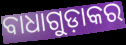
ବାଧାଗୁଡ଼ାକର